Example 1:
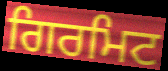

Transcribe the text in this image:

ਗਿਰਮਿਟ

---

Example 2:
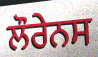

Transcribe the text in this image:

ਲੌਰੇਨਸ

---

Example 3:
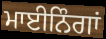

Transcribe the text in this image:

ਮਾਈਨਿੰਗਾਂ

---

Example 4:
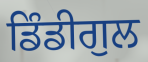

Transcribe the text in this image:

ਡਿੰਡੀਗੁਲ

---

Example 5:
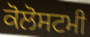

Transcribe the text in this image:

ਕੋਲੋਸਟਮੀ